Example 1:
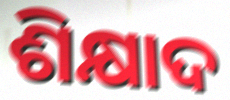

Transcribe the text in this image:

ଶିକ୍ଷାଦ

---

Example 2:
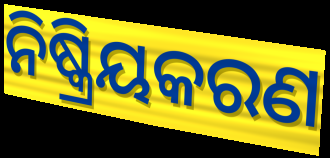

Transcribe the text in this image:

ନିଷ୍କ୍ରିୟକରଣ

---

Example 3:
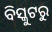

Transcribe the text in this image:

ବିସ୍କୁଟରୁ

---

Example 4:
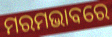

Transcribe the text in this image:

ମରମଭାବରେ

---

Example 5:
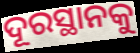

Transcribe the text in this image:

ଦୂରସ୍ଥାନକୁ